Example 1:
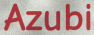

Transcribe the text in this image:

Azubi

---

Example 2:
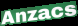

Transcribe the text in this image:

Anzacs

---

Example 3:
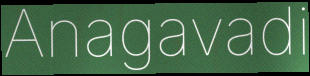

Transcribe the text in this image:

Anagavadi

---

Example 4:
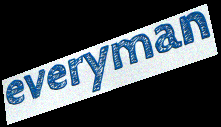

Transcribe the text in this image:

everyman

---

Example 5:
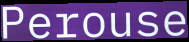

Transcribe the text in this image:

Perouse